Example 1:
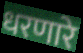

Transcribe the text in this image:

धरणारे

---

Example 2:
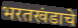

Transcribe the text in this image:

भरतखंडाचे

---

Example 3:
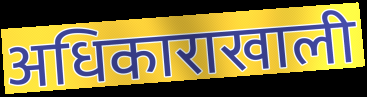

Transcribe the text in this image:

अधिकाराखाली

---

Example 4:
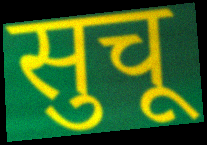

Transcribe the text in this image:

सुचू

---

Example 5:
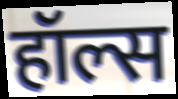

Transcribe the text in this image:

हॉल्स